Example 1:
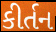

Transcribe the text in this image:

કીર્તન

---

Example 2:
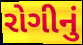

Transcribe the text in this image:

રોગીનું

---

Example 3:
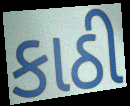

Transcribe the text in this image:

કાઠી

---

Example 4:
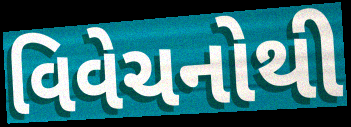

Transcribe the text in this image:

વિવેચનોથી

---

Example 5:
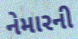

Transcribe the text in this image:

નેમારની